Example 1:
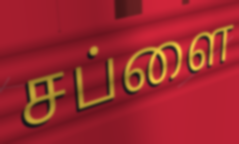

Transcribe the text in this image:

சப்ளை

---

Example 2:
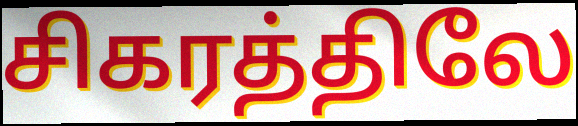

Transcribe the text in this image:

சிகரத்திலே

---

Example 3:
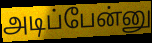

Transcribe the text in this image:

அடிப்பேன்னு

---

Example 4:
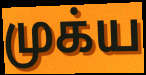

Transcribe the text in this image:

முக்ய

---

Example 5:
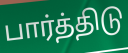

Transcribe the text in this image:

பார்த்திடு